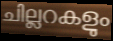
ചില്ലറകളും